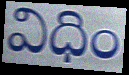
విధిం